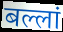
बल्लां